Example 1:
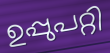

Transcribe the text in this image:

ഉപ്പുപറ്റി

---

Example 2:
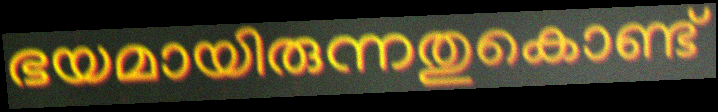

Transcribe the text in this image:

ഭയമായിരുന്നതുകൊണ്ട്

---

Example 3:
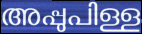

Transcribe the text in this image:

അപ്പുപിള്ള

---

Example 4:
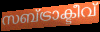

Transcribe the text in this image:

സബ്ട്രാക്ടീവ്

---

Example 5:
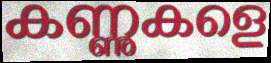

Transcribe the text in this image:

കണ്ണുകളെ